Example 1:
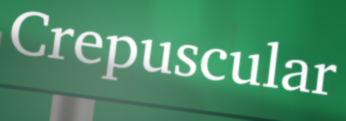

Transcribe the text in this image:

Crepuscular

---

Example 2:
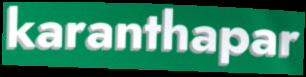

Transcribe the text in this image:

karanthapar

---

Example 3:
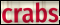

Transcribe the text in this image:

crabs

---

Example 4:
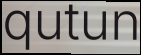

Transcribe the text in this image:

qutun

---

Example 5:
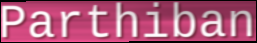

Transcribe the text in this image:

Parthiban